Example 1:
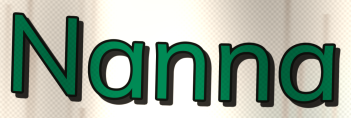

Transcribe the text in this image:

Nanna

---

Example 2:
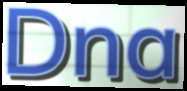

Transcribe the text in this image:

Dna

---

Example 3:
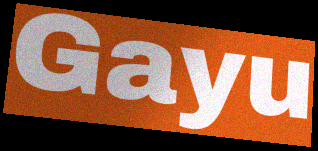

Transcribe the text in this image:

Gayu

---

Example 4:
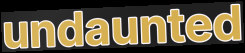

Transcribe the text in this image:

undaunted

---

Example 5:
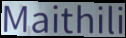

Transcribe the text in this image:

Maithili